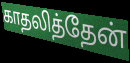
காதலித்தேன்